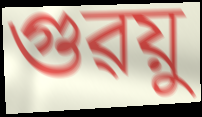
গুৱয়ু